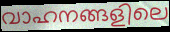
വാഹനങ്ങളിലെ